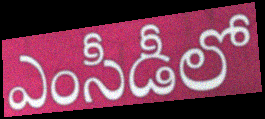
ఎంసీడీలో